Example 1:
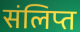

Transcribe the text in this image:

संलिप्त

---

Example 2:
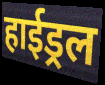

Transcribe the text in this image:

हाईड्रल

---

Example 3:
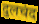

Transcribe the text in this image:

दुलचंद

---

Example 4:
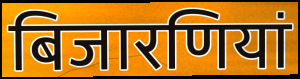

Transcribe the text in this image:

बिजारणियां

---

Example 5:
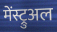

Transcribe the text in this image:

मेंस्ट्रुअल